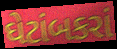
ઘેટાંબકરાં